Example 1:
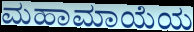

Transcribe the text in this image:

ಮಹಾಮಾಯೆಯ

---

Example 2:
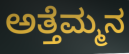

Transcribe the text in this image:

ಅತ್ತೆಮ್ಮನ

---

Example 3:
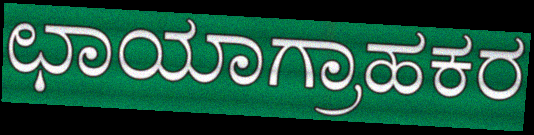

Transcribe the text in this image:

ಛಾಯಾಗ್ರಾಹಕರ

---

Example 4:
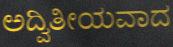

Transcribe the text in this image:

ಅದ್ವಿತೀಯವಾದ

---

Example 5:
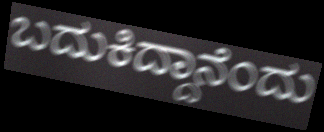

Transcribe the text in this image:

ಬದುಕಿದ್ದಾನೆಂದು